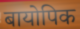
बायोपिक